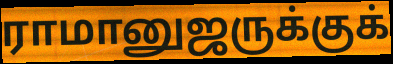
ராமானுஜருக்குக்